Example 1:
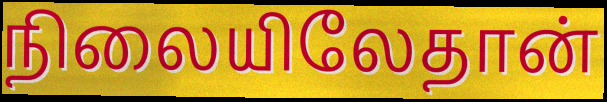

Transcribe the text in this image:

நிலையிலேதான்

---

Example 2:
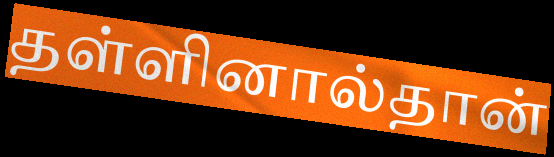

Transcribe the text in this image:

தள்ளினால்தான்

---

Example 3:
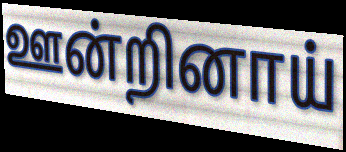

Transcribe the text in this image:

ஊன்றினாய்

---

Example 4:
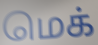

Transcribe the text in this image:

மெக்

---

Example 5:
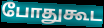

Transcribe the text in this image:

போதுகூட